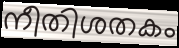
നീതിശതകം